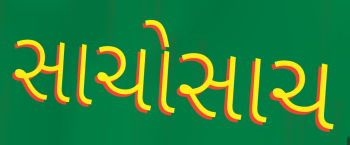
સાચોસાચ